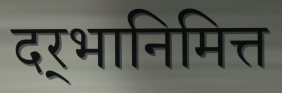
दर्भानिमित्त